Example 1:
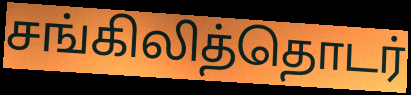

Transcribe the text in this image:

சங்கிலித்தொடர்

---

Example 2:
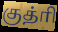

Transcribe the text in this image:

குத்ரி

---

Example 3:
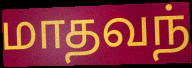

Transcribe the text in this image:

மாதவந்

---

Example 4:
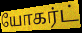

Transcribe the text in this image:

யோகர்ட்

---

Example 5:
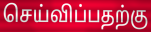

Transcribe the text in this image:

செய்விப்பதற்கு